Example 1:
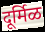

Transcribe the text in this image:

दूर्मिळ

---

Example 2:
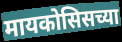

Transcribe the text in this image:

मायकोसिसच्या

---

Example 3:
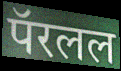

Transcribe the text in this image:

पॅरलल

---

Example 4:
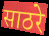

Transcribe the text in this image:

साठरे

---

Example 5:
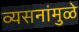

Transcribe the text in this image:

व्यसनांमुळे